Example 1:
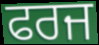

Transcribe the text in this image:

ਫਰਜ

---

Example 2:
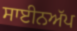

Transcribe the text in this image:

ਸਾਈਨਅੱਪ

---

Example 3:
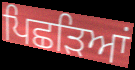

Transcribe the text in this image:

ਪਿਛੜਿਆਂ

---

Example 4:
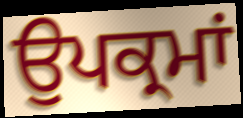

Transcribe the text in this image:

ਉਪਕ੍ਰਮਾਂ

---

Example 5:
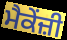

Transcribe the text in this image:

ਮੈਕੇਂਜ਼ੀ